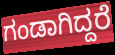
ಗಂಡಾಗಿದ್ದರೆ